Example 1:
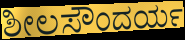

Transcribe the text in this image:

ಶೀಲಸೌಂದರ್ಯ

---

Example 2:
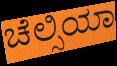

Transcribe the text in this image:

ಚೆಲ್ಸಿಯಾ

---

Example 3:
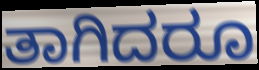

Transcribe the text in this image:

ತಾಗಿದರೂ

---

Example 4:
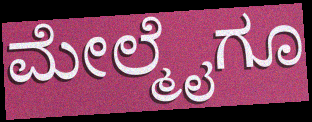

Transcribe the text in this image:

ಮೇಲ್ಮೈಗೂ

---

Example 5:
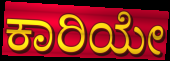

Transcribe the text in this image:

ಕಾರಿಯೇ